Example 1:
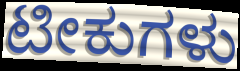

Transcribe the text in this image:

ಟೀಕುಗಳು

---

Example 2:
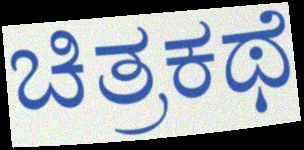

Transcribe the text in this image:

ಚಿತ್ರಕಥೆ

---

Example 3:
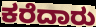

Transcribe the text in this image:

ಕರೆದಾರು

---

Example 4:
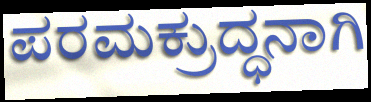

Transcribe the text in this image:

ಪರಮಕ್ರುದ್ಧನಾಗಿ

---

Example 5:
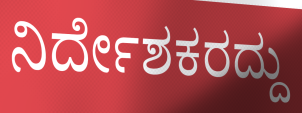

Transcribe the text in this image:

ನಿರ್ದೇಶಕರದ್ದು